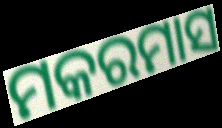
ମକରମାସ